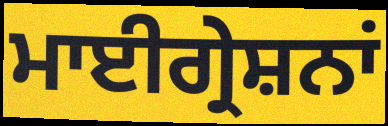
ਮਾਈਗ੍ਰੇਸ਼ਨਾਂ